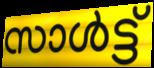
സാൾട്ട്